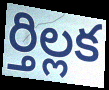
ర్తిల్లక